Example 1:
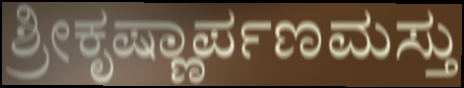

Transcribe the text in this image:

ಶ್ರೀಕೃಷ್ಣಾರ್ಪಣಮಸ್ತು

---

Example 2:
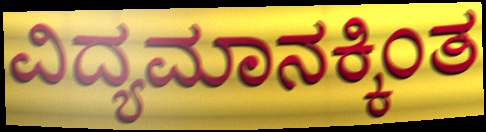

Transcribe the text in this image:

ವಿದ್ಯಮಾನಕ್ಕಿಂತ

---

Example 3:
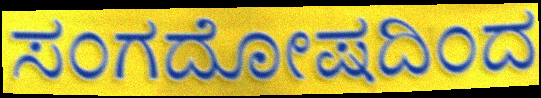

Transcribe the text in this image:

ಸಂಗದೋಷದಿಂದ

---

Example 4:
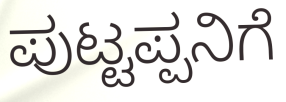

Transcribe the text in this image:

ಪುಟ್ಟಪ್ಪನಿಗೆ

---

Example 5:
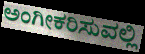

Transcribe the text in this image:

ಅಂಗೀಕರಿಸುವಲ್ಲಿ